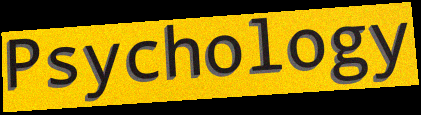
Psychology